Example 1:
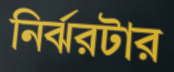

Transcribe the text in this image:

নির্ঝরটার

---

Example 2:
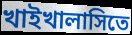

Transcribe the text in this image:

খাইখালাসিতে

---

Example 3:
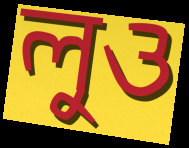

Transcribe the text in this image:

লুও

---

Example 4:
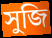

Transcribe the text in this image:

সুজি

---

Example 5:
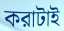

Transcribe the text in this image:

করাটাই